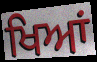
ਖਿਆਂ